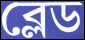
ব্লেড